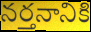
నర్తనానికి